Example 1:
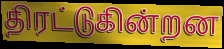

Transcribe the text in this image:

திரட்டுகின்றன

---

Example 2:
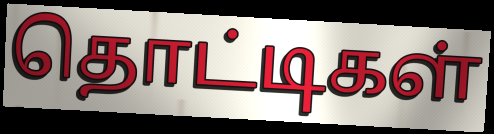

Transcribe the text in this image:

தொட்டிகள்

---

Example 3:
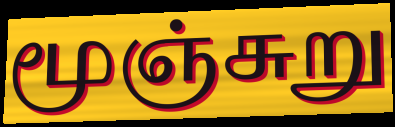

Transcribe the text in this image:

மூஞ்சுறு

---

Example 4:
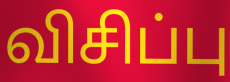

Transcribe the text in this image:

விசிப்பு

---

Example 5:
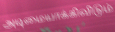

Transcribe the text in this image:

அடிமையாக்கிவிடும்